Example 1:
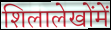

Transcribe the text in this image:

शिलालेखोंमें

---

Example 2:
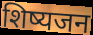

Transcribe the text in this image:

शिष्यजन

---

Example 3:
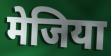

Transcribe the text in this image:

मेजिया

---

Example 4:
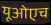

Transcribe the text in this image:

यूओएच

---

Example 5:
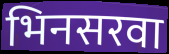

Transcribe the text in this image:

भिनसरवा